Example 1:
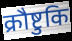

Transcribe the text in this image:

क्रौष्टुकि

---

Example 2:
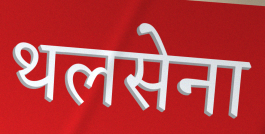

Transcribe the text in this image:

थलसेना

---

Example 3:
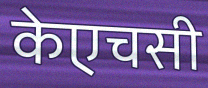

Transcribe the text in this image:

केएचसी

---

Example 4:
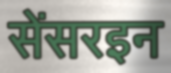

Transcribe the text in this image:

सेंसरइन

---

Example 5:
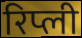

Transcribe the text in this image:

रिप्ली